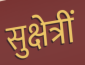
सुक्षेत्रीं